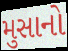
મુસાનો